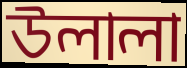
উলালা